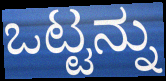
ಒಟ್ಟನ್ನು